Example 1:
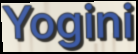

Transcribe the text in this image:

Yogini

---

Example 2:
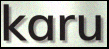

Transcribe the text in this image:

karu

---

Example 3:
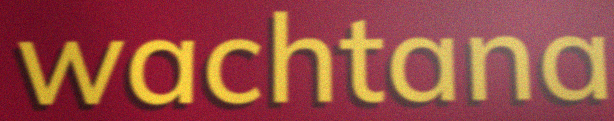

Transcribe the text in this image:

wachtana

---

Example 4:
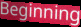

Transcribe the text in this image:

Beginning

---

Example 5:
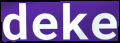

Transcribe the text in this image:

deke